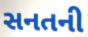
સનતની